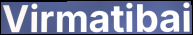
Virmatibai